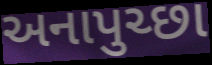
અનાપુચ્છા